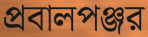
প্রবালপঞ্জর